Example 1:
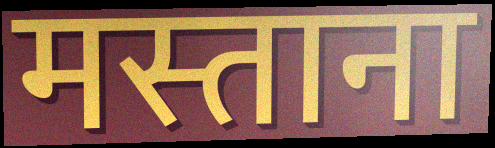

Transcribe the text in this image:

मस्ताना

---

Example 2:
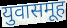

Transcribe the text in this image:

युवासमूह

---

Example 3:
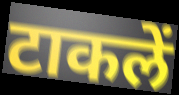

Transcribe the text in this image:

टाकलें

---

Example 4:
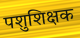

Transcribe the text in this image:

पशुशिक्षक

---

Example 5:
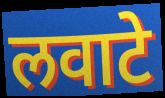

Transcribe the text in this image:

लवाटे